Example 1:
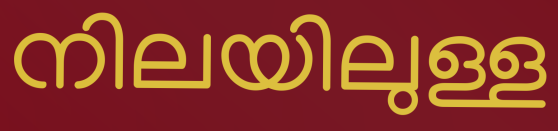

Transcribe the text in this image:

നിലയിലുള്ള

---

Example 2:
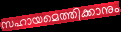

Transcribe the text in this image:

സഹായമെത്തിക്കാനും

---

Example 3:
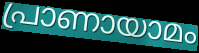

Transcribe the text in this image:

പ്രാണായാമം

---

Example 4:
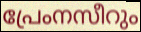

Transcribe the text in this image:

പ്രേംനസീറും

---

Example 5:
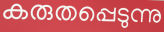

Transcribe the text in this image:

കരുതപ്പെടുന്നു